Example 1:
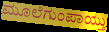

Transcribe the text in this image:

ಮೂಲೆಗುಂಪಾಯ್ತು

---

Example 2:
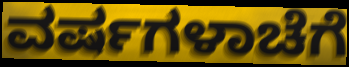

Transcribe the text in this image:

ವರ್ಷಗಳಾಚೆಗೆ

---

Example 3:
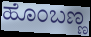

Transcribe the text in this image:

ಹೊಂಬಣ್ಣ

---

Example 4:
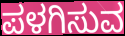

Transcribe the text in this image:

ಪಳಗಿಸುವ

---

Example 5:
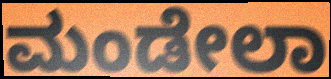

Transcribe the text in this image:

ಮಂಡೇಲಾ